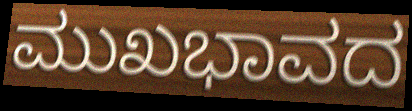
ಮುಖಭಾವದ